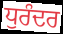
ਧੁਰੰਦਰ